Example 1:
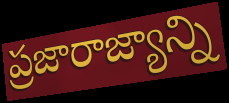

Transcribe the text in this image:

ప్రజారాజ్యాన్ని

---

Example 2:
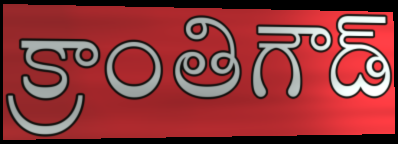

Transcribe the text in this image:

క్రాంతిగౌడ్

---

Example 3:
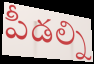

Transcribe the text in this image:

పీడల్ని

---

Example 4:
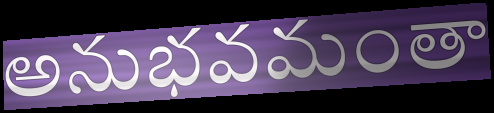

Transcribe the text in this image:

అనుభవమంతా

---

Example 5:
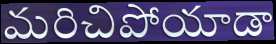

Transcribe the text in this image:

మరిచిపోయాడా